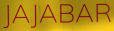
JAJABAR